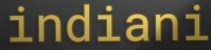
indiani